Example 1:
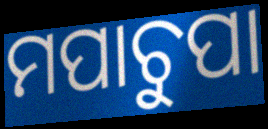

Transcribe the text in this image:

ମପାଚୁପା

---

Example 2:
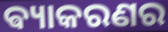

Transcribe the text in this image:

ଵ୍ୟାକରଣର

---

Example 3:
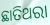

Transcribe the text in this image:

ଛାତିଥରା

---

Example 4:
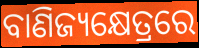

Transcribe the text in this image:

ବାଣିଜ୍ୟକ୍ଷେତ୍ରରେ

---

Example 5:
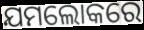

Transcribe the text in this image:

ଯମଲୋକରେ